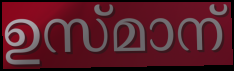
ഉസ്മാന്